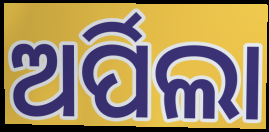
ଅର୍ପିଲା